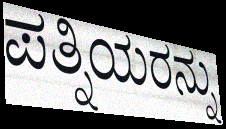
ಪತ್ನಿಯರನ್ನು